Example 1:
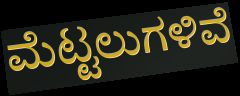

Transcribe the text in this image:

ಮೆಟ್ಟಲುಗಳಿವೆ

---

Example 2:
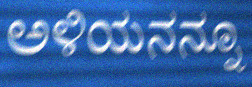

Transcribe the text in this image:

ಅಳಿಯನನ್ನೂ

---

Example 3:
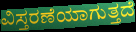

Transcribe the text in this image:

ವಿಸ್ತರಣೆಯಾಗುತ್ತದೆ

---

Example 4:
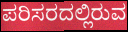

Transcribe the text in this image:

ಪರಿಸರದಲ್ಲಿರುವ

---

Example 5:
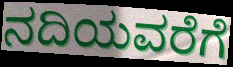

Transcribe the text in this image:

ನದಿಯವರೆಗೆ